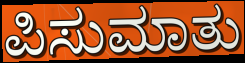
ಪಿಸುಮಾತು